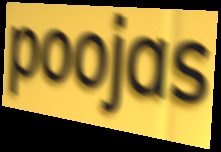
poojas